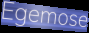
Egemose